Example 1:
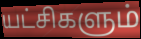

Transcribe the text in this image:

யட்சிகளும்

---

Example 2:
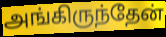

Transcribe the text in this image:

அங்கிருந்தேன்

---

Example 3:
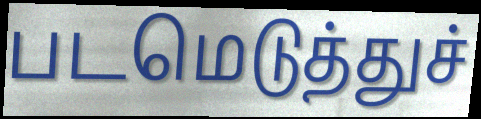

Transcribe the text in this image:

படமெடுத்துச்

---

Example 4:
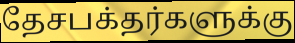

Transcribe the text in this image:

தேசபக்தர்களுக்கு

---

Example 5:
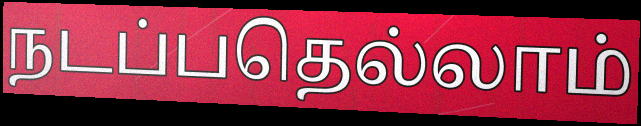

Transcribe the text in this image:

நடப்பதெல்லாம்